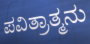
ಪವಿತ್ರಾತ್ಮನು